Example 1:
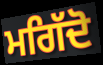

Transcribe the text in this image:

ਮਗਿੱਦੋ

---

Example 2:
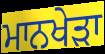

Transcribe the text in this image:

ਮਾਨਖੇੜਾ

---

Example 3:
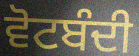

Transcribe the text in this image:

ਵੋਟਬੰਦੀ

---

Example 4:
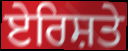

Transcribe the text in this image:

ਏਰਿਸ਼ਤੇ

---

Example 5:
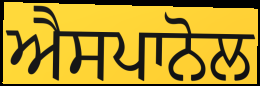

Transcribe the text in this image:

ਐਸਪਾਨੋਲ